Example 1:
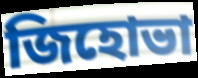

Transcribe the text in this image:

জিহোভা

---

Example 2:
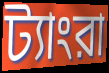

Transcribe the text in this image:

ট্যাংরা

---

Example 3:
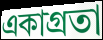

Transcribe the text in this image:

একাগ্রতা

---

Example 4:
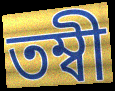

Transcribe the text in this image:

তম্বী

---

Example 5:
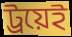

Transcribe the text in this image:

ট্রয়েই